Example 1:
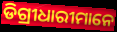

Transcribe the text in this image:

ଡିଗ୍ରୀଧାରୀମାନେ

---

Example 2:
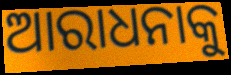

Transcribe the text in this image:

ଆରାଧନାକୁ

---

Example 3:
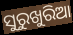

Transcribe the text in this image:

ସୁରୁଖୁରିଆ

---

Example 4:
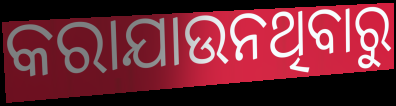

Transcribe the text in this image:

କରାଯାଉନଥିବାରୁ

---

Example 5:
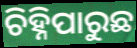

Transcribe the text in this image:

ଚିହ୍ନିପାରୁଛ